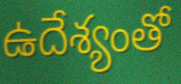
ఉదేశ్యంతో